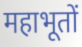
महाभूतों